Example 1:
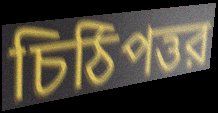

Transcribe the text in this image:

চিঠিপত্তর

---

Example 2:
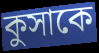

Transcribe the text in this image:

কুসাকে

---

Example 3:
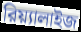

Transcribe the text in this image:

রিয়্যালাইজ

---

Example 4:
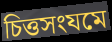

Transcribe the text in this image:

চিত্তসংযমে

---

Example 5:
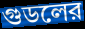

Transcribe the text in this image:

গুডলের